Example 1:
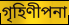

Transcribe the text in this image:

গৃহিণীপনা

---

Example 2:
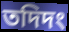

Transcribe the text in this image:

তদিদং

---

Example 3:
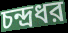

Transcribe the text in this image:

চন্দ্রধর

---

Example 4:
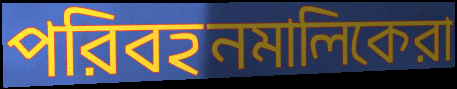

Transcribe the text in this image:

পরিবহনমালিকেরা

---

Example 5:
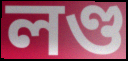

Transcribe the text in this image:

লণ্ড